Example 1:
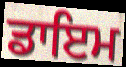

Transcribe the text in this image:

ਡਾਇਮ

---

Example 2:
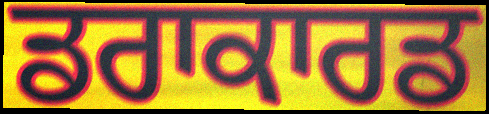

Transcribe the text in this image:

ਡਰਾਕਾਰਡ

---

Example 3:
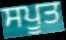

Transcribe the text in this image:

ਸਪੂਤ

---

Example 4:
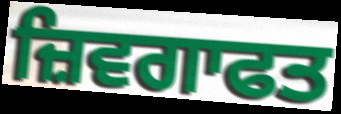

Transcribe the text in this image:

ਜ਼ਿਵਗਾਫਤ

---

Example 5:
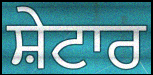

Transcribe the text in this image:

ਸ਼ੇਟਾਰ